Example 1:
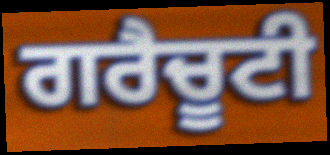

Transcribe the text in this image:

ਗਰੈਚੂਟੀ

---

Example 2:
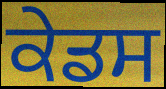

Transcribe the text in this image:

ਕੇਡਸ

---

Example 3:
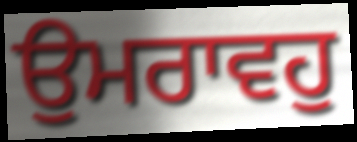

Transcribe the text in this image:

ਉਮਰਾਵਹੁ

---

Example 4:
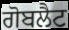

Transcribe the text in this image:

ਗੋਬਲੈਟ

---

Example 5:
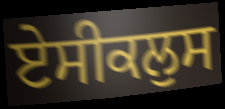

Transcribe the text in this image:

ਏਸੀਕਲੁਸ